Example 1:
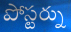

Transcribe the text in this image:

పోస్టర్ను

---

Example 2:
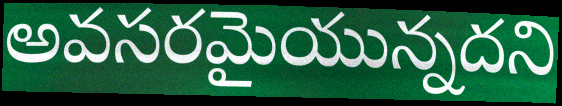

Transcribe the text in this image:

అవసరమైయున్నదని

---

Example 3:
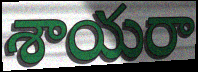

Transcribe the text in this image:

శాయరా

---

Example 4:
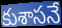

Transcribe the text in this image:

కుశాసనే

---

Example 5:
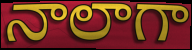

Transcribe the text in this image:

నాలాగా